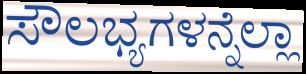
ಸೌಲಭ್ಯಗಳನ್ನೆಲ್ಲಾ